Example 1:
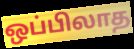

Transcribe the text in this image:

ஒப்பிலாத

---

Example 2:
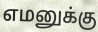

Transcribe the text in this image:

எமனுக்கு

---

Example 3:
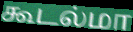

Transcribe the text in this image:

கூடல்மா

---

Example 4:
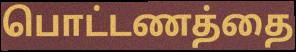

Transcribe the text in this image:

பொட்டணத்தை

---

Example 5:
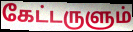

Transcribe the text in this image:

கேட்டருளும்